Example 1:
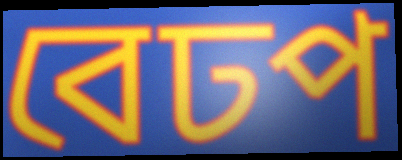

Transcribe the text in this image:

বেঢপ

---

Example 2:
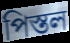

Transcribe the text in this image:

পিস্তল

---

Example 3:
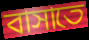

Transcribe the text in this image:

বাসাতে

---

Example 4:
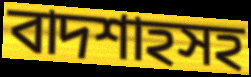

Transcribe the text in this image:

বাদশাহসহ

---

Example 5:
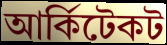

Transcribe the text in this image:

আর্কিটেকট